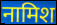
नामिश